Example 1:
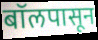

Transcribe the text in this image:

बॉलपासून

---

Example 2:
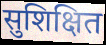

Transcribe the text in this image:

सुशिक्षित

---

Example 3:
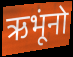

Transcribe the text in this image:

ऋभूंनो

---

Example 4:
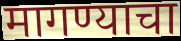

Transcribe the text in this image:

मागण्याचा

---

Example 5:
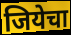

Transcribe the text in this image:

जियेचा